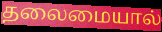
தலைமையால்